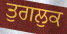
ਤੁਗਲੁਕ